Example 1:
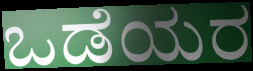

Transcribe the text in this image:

ಒಡೆಯರ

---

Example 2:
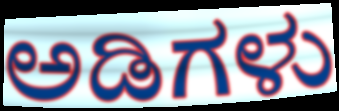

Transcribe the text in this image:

ಅಡಿಗಳು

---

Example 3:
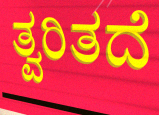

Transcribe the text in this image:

ತ್ವರಿತದೆ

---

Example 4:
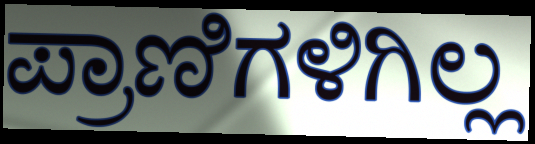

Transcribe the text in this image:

ಪ್ರಾಣಿಗಳಿಗಿಲ್ಲ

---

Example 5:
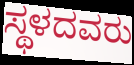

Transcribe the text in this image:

ಸ್ಥಳದವರು